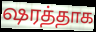
ஷரத்தாக